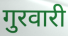
गुरवारी